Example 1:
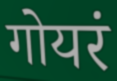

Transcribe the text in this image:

गोयरं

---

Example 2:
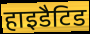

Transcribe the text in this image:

हाइडैटिड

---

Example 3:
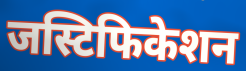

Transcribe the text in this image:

जस्टिफिकेशन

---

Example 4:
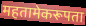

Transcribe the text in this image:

महतामेकरूपता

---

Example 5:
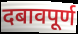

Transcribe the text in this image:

दबावपूर्ण